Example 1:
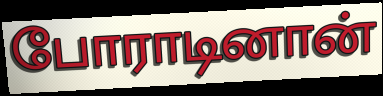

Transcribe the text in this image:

போராடினான்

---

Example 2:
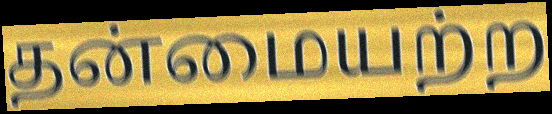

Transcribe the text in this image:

தன்மையற்ற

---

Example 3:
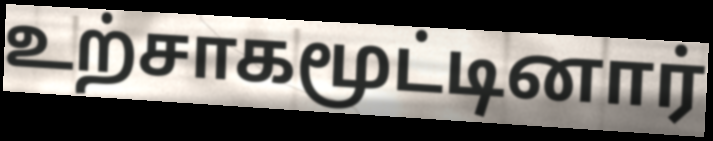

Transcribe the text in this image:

உற்சாகமூட்டினார்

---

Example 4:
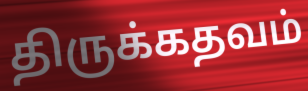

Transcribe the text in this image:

திருக்கதவம்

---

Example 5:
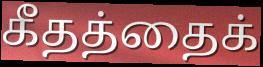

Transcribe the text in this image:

கீதத்தைக்